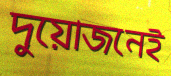
দুয়োজনেই